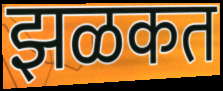
झळकत